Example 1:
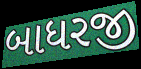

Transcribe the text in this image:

બાધરજી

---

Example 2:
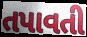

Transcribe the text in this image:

તપાવતી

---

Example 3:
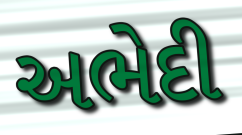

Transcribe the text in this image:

અભેદી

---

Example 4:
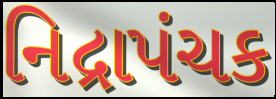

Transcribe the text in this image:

નિદ્રાપંચક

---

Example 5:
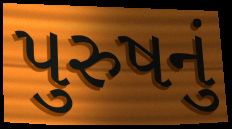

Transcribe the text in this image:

પુરુષનું